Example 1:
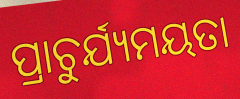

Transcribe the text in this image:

ପ୍ରାଚୁର୍ଯ୍ୟମୟତା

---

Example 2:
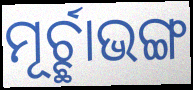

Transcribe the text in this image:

ମୂର୍ଚ୍ଛାଭଙ୍ଗ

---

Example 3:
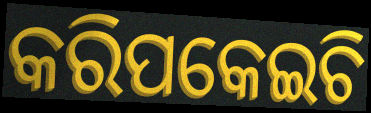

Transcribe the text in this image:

କରିପକେଇଚି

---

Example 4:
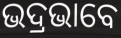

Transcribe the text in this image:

ଭଦ୍ରଭାବେ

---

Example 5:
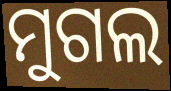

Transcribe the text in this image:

ମୁଗଲ